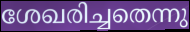
ശേഖരിച്ചതെന്നു